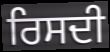
ਰਿਸਦੀ